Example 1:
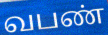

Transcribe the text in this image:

வபண்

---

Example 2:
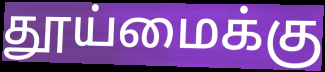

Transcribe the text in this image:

தூய்மைக்கு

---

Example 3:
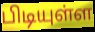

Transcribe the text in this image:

பிடியுள்ள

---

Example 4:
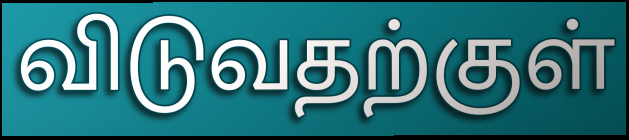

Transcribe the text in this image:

விடுவதற்குள்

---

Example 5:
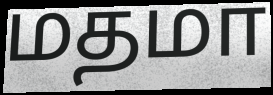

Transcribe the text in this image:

மதமா